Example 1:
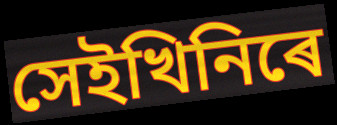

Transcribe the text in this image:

সেইখিনিৰে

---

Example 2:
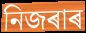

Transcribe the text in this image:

নিজৰাৰ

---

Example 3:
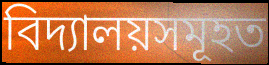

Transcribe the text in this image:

বিদ্যালয়সমূহত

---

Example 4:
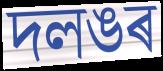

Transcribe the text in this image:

দলঙৰ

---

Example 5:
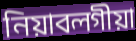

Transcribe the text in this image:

নিয়াবলগীয়া